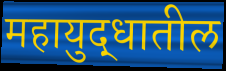
महायुद्धातील